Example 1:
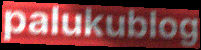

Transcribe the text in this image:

palukublog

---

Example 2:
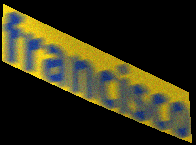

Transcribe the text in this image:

francisco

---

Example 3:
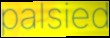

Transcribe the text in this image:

palsied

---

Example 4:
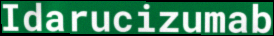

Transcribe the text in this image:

Idarucizumab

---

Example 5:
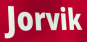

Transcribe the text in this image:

Jorvik